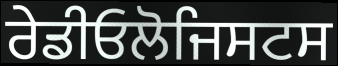
ਰੇਡੀਓਲੋਜਿਸਟਸ